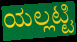
ಯಲ್ಲಟ್ಟಿ